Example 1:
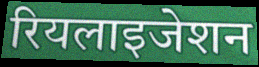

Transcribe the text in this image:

रियलाइजेशन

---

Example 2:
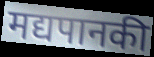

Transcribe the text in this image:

मद्यपानकी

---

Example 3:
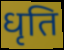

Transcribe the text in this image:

धृति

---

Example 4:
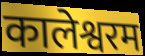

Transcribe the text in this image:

कालेश्वरम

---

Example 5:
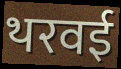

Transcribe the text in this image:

थरवई